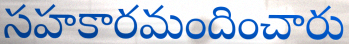
సహకారమందించారు